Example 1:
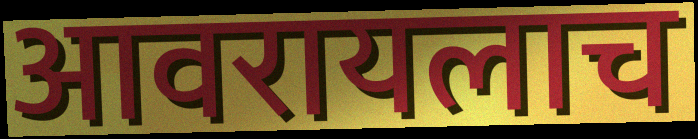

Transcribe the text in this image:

आवरायलाच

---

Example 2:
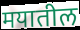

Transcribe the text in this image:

मयातील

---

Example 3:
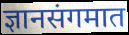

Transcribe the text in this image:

ज्ञानसंगमात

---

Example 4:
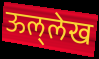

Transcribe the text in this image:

ऊल्लेख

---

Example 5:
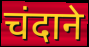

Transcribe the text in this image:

चंदाने